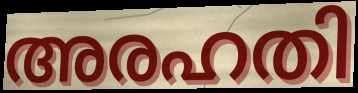
അരഹതി